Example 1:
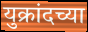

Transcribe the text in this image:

युक्रांदच्या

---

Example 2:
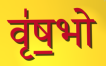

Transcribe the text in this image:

वृ॑ष॒भो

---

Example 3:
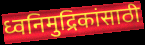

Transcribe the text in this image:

ध्वनिमुद्रिकांसाठी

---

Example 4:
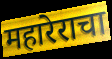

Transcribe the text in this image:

महारेराचा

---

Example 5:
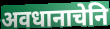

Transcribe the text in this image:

अवधानाचेनि